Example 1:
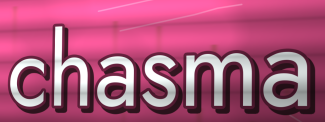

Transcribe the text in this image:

chasma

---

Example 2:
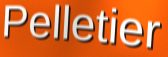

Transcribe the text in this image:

Pelletier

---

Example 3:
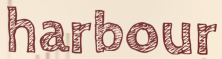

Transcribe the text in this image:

harbour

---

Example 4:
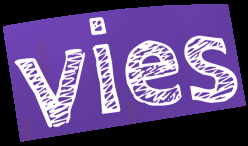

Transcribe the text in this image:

vies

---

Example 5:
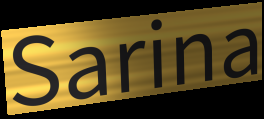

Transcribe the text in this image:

Sarina